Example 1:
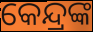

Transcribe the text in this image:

କେନ୍ଦ୍ରଙ୍କ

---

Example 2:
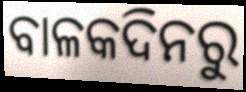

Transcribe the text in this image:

ବାଳକଦିନରୁ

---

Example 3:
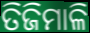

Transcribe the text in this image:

ତିଜିମାଳି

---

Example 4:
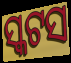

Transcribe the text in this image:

ସ୍କଟସ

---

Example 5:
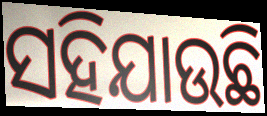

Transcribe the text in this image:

ସହିଯାଉଛି